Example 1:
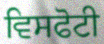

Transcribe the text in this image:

ਵਿਸਫੋਟੀ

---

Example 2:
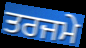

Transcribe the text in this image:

ਤਰਜਮੇ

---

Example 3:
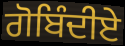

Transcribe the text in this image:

ਗੋਬਿੰਦੀਏ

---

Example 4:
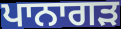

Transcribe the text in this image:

ਪਾਨਾਗੜ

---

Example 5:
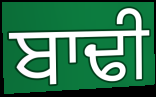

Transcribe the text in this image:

ਬਾਢੀ